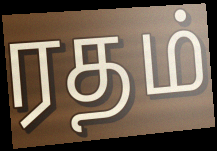
ரதம்